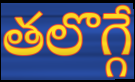
తలొగ్గే